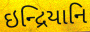
ઇન્દ્રિયાનિ